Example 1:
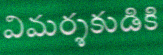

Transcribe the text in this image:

విమర్శకుడికి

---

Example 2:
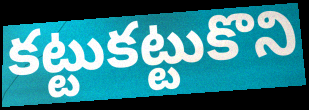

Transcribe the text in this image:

కట్టుకట్టుకొని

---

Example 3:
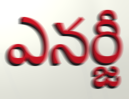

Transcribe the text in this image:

ఎనర్జీ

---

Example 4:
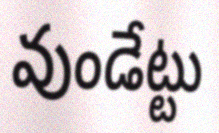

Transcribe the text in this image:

వుండేట్టు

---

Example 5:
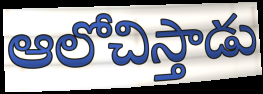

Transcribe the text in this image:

ఆలోచిస్తాడు